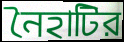
নৈহাটির